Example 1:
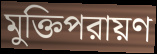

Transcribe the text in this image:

মুক্তিপরায়ণ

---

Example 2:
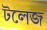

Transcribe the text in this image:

টলেজ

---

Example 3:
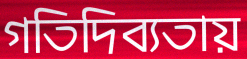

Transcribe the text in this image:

গতিদিব্যতায়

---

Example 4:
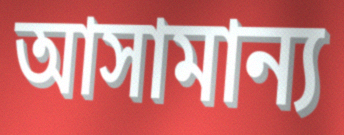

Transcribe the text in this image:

আসামান্য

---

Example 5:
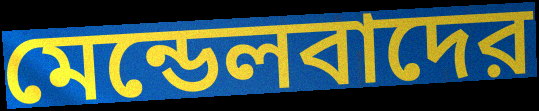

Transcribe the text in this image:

মেন্ডেলবাদের